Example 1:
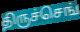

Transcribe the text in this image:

திருச்செங்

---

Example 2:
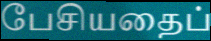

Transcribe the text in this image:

பேசியதைப்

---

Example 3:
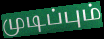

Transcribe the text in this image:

முடிப்பும்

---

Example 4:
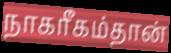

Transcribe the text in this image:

நாகரீகம்தான்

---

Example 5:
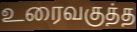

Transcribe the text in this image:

உரைவகுத்த